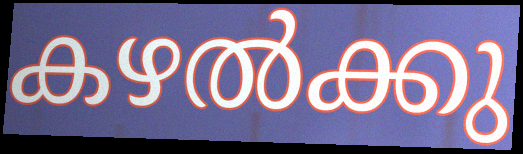
കഴൽക്കു